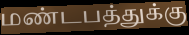
மண்டபத்துக்கு